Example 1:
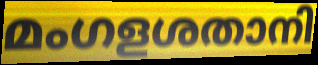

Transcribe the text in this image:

മംഗളശതാനി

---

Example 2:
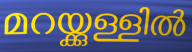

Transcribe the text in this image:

മറയ്ക്കുള്ളിൽ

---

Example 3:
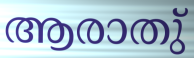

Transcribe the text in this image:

ആരാതു്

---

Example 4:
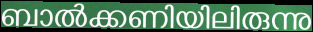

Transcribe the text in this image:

ബാൽക്കണിയിലിരുന്നു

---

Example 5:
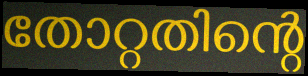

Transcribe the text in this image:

തോറ്റതിന്റെ